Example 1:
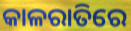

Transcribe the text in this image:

କାଳରାତିରେ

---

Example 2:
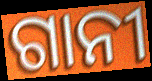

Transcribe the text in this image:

ଗାନୀ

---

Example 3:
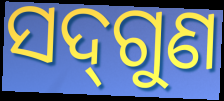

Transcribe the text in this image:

ସଦ୍‌ଗୁଣ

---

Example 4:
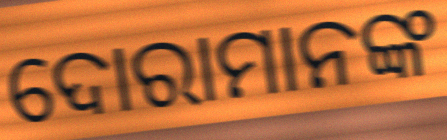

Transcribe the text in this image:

ଦୋରାମାନଙ୍କ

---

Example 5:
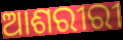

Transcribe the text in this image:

ଆଶରୀରୀ